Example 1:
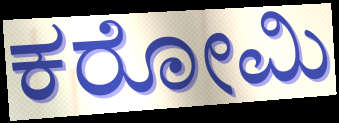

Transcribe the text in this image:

ಕರೋಮಿ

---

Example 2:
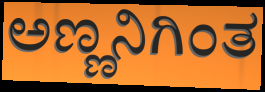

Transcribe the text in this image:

ಅಣ್ಣನಿಗಿಂತ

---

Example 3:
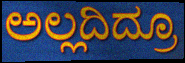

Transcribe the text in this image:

ಅಲ್ಲದಿದ್ರೂ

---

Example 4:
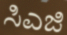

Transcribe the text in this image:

ಸಿಎಜಿ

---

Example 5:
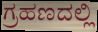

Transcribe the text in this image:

ಗ್ರಹಣದಲ್ಲಿ